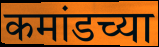
कमांडच्या